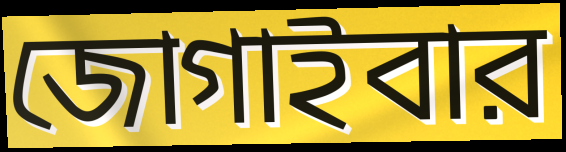
জোগাইবার